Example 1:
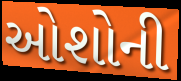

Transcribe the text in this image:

ઓશોની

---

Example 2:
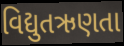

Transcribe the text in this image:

વિદ્યુતઋણતા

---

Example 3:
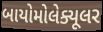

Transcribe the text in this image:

બાયોમોલેક્યૂલર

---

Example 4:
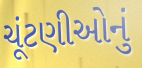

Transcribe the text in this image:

ચૂંટણીઓનું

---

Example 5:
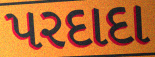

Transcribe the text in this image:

પરદાદા